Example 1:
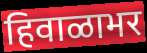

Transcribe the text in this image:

हिवाळाभर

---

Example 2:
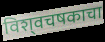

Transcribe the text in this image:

विश्वचषकाचा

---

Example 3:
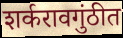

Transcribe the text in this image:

शर्करावगुंठीत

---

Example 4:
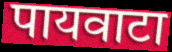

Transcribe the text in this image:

पायवाटा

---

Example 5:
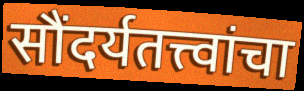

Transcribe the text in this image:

सौंदर्यतत्त्वांचा